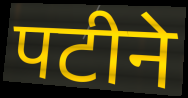
पटीने